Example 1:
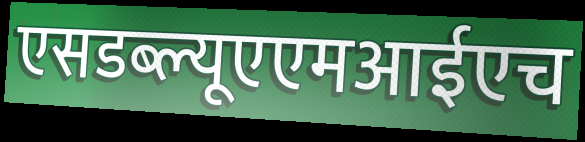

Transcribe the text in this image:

एसडब्ल्यूएएमआईएच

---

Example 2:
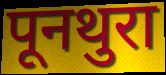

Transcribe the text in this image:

पूनथुरा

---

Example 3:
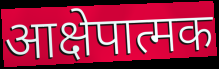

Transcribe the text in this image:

आक्षेपात्मक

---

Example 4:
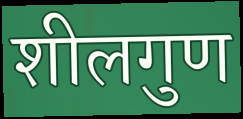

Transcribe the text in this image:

शीलगुण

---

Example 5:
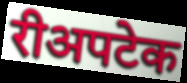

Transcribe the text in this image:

रीअपटेक